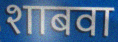
शाबवा